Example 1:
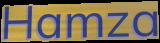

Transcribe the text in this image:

Hamza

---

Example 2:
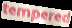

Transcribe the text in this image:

tempered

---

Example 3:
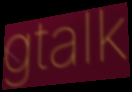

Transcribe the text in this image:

gtalk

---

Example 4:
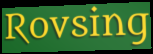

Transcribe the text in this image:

Rovsing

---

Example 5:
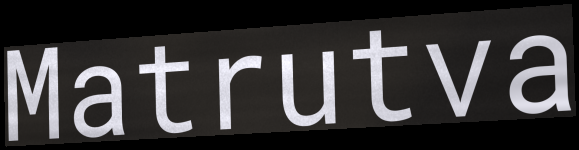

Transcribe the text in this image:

Matrutva